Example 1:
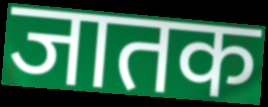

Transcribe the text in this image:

जातक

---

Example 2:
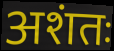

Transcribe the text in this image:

अशंतः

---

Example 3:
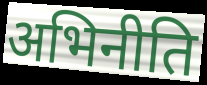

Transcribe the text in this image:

अभिनीति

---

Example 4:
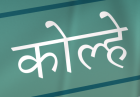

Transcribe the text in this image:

कोल्हे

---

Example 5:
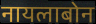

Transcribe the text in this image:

नायलाबोन